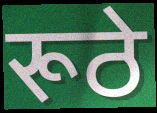
रूठे